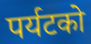
पर्यटको